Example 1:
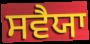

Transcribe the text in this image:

ਸਵੈਯਾ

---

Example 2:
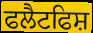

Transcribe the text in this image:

ਫਲੈਟਫਿਸ਼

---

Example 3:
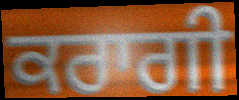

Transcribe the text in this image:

ਕਰਾਗੀ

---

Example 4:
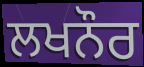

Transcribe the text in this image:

ਲਖਨੌਰ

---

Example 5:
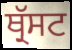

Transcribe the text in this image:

ਥ੍ਰੱਸਟ